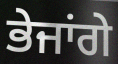
ਭੇਜਾਂਗੇ